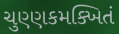
ચુણ્ણકમક્ખિતં